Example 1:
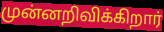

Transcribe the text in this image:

முன்னறிவிக்கிறார்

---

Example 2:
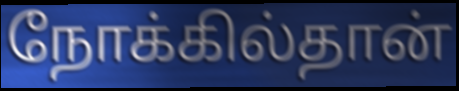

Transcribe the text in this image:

நோக்கில்தான்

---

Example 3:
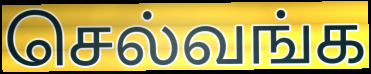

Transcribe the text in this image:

செல்வங்க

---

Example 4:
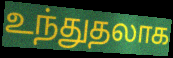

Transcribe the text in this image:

உந்துதலாக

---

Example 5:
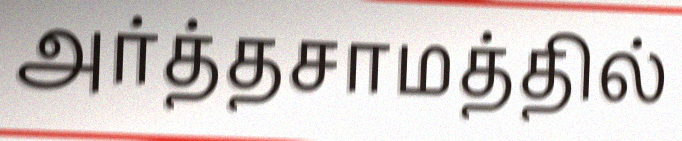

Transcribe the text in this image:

அர்த்தசாமத்தில்